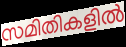
സമിതികളിൽ